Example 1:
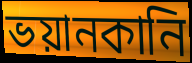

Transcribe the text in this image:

ভয়ানকানি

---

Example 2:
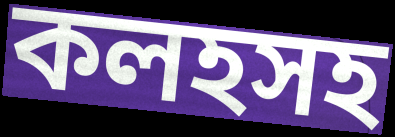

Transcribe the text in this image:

কলহসহ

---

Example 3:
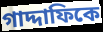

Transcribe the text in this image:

গাদ্দাফিকে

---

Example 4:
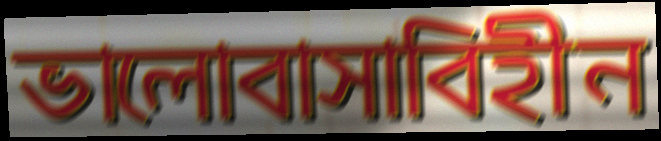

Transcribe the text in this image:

ভালোবাসাবিহীন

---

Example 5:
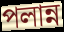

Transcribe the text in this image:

পলান্ন